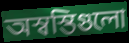
অস্বস্তিগুলো